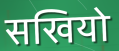
सखियो